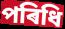
পৰিধি